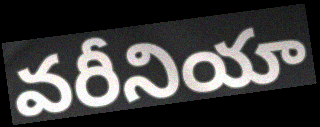
వరీనియా